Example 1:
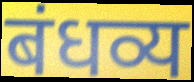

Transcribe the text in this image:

बंधव्य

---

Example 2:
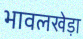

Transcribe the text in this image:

भावलखेड़ा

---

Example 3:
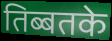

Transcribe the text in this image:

तिब्बतके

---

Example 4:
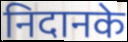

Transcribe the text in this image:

निदानके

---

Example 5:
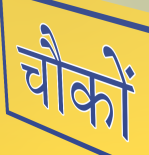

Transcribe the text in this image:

चौकों